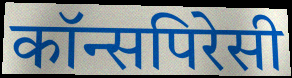
कॉन्सपिरेसी